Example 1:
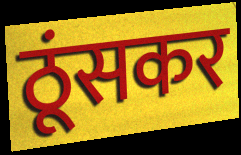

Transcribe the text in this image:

ठूंसकर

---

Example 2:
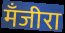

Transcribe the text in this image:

मँजीरा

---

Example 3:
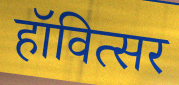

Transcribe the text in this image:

हॉवित्सर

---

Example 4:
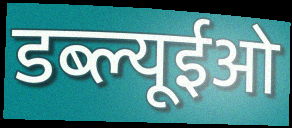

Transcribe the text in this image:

डब्ल्यूईओ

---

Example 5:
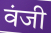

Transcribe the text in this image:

वंजी